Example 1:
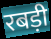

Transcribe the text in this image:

रबड़ी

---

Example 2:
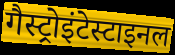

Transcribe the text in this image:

गैस्ट्रोइंटेस्टाइनल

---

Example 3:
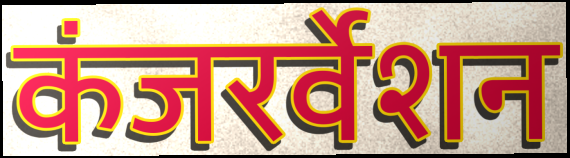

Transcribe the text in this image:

कंजरर्वेशन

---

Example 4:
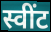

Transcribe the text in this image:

स्वींट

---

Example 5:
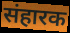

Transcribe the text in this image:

संहारक